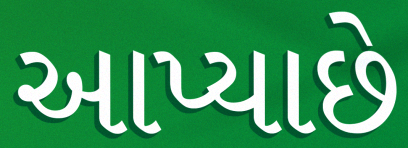
આપ્યાછે